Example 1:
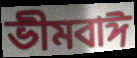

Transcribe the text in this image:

ভীমবাঈ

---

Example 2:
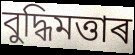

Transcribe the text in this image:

বুদ্ধিমত্তাৰ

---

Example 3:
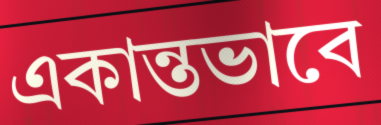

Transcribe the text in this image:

একান্তভাবে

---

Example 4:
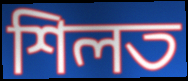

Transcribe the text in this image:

শিলত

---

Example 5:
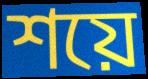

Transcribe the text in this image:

শয়ে